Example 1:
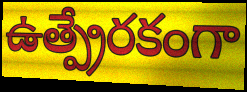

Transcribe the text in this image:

ఉత్ప్రేరకంగా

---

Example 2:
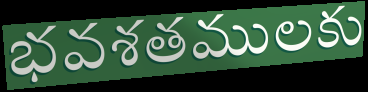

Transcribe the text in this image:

భవశతములకు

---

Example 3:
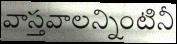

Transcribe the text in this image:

వాస్తవాలన్నింటినీ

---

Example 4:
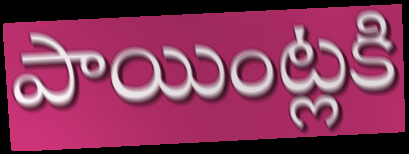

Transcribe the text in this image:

పాయింట్లకి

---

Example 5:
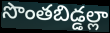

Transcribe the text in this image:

సొంతబిడ్డల్లా